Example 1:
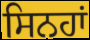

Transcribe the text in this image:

ਸਿਨਹਾਂ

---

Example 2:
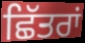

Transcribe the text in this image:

ਛਿੱਤਰਾਂ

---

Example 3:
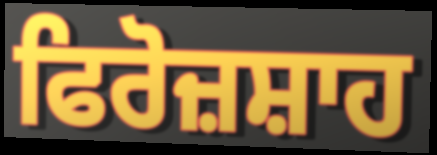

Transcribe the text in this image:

ਫਿਰੋਜ਼ਸ਼ਾਹ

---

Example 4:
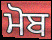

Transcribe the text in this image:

ਮੋਬ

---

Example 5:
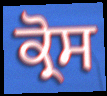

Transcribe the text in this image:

ਕ੍ਰੋਸ